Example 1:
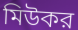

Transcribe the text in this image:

মিউকর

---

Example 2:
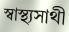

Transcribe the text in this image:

স্বাস্থ্যসাথী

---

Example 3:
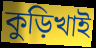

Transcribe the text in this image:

কুড়িখাই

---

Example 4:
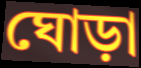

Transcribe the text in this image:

ঘোড়া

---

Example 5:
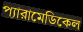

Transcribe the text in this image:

প্যারামেডিকেল